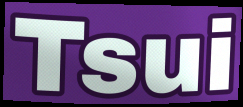
Tsui